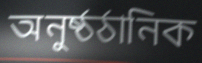
অনুষ্ঠঠানিক